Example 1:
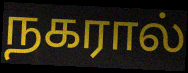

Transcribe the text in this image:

நகரால்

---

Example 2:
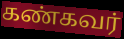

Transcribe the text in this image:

கண்கவர்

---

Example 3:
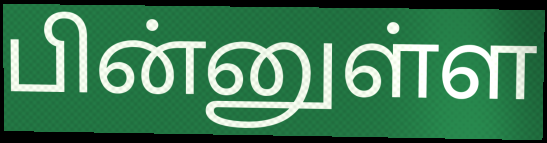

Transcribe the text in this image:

பின்னுள்ள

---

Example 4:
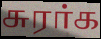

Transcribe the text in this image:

சுரர்க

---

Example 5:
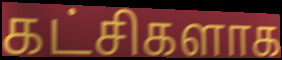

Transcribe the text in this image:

கட்சிகளாக